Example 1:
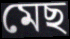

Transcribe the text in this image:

মেছ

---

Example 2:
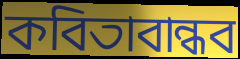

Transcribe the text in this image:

কবিতাবান্ধব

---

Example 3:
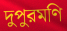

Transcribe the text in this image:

দুপুরমণি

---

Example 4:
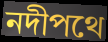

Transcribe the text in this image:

নদীপথে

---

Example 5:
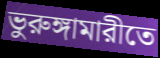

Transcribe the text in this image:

ভুরুঙ্গামারীতে